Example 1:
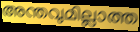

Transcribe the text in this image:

അന്തവുമില്ലാത്ത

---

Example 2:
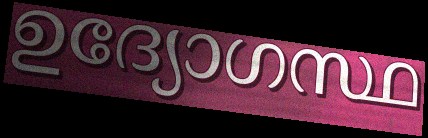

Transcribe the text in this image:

ഉദ്യോഗസ്ഥ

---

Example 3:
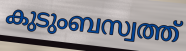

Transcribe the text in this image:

കുടുംബസ്വത്ത്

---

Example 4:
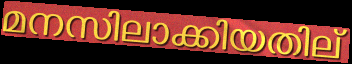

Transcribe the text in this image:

മനസിലാക്കിയതില്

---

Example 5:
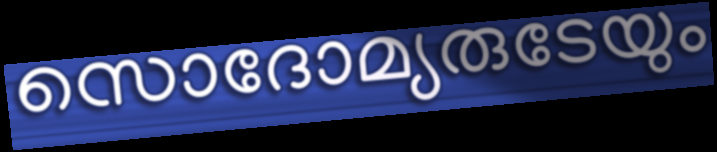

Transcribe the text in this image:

സൊദോമ്യരുടേയും